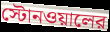
স্টোনওয়ালের